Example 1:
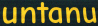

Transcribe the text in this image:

untanu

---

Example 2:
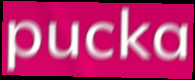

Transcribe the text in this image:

pucka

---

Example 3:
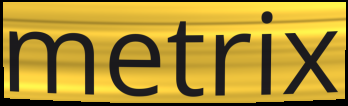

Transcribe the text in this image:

metrix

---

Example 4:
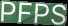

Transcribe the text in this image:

PFPS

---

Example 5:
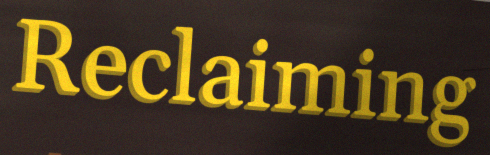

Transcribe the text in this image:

Reclaiming